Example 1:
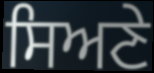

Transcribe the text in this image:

ਸਿਅਣੇ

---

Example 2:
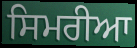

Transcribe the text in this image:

ਸਿਮਰੀਆ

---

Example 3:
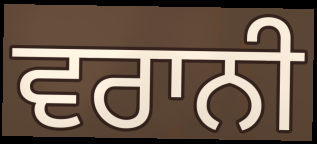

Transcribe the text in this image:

ਵਰਾਨੀ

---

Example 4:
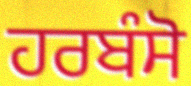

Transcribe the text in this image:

ਹਰਬੰਸੋ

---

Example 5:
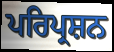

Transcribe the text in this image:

ਪਰਿਪ੍ਰਸ਼ਨ